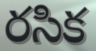
రసిక